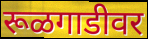
रूळगाडीवर